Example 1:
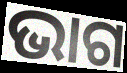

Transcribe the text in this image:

ଭାଗ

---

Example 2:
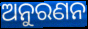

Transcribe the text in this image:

ଅନୁରଣନ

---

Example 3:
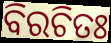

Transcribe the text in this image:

ବିରଚିତଃ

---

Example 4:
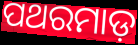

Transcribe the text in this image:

ପଥରମାଡ଼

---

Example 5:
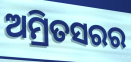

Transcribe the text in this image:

ଅମ୍ରିତସରର